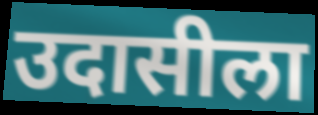
उदासीला